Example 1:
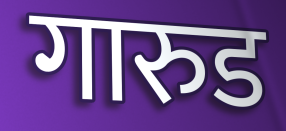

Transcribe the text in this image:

गारुड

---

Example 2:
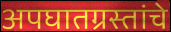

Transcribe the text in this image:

अपघातग्रस्तांचे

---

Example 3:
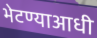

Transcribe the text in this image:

भेटण्याआधी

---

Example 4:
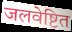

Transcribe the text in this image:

जलवेष्टित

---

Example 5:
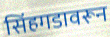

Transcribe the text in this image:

सिंहगडावरून